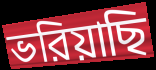
ভরিয়াছি